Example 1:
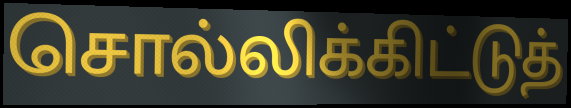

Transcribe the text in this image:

சொல்லிக்கிட்டுத்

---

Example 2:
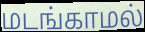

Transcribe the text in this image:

மடங்காமல்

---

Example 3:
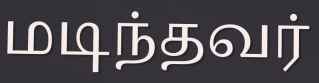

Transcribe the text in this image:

மடிந்தவர்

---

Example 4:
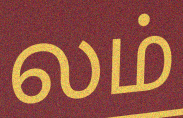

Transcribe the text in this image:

லம்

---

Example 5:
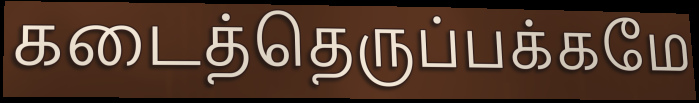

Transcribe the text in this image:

கடைத்தெருப்பக்கமே